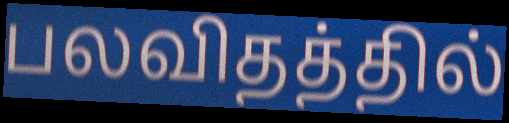
பலவிதத்தில்